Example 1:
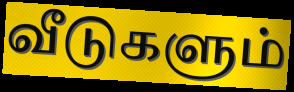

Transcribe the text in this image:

வீடுகளும்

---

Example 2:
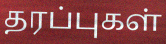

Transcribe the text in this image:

தரப்புகள்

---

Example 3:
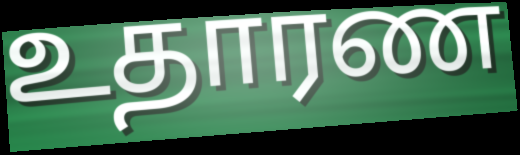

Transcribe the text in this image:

உதாரண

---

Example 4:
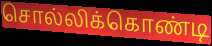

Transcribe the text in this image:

சொல்லிக்கொண்டி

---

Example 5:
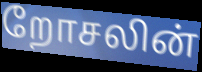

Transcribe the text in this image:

றோசலின்